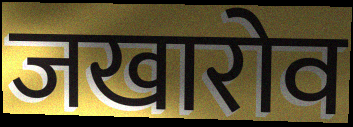
जखारोव